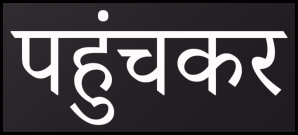
पहुंचकर